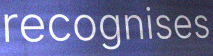
recognises